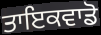
ਤਾਇਕਵਾਡੋ